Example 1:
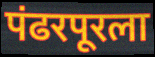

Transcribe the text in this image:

पंढरपूरला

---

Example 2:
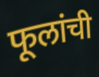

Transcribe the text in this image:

फूलांची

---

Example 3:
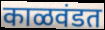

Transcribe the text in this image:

काळवंडत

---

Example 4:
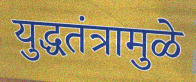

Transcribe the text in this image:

युद्धतंत्रामुळे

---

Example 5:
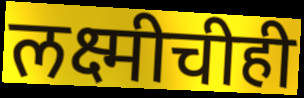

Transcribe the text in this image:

लक्ष्मीचीही